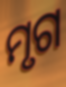
ମୃଗ